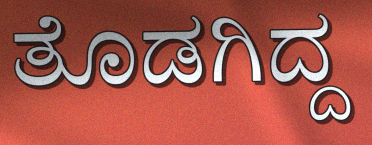
ತೊಡಗಿದ್ದ